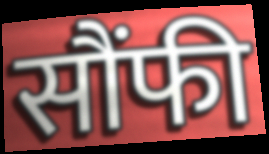
सौंफी